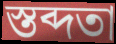
স্তব্দতা